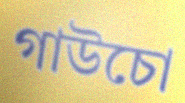
গাউচো